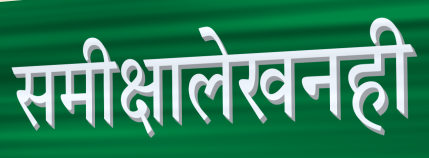
समीक्षालेखनही